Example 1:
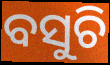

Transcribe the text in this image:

ବସୁଚି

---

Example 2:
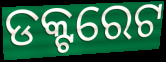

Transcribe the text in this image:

ଡକ୍ଟରେଟ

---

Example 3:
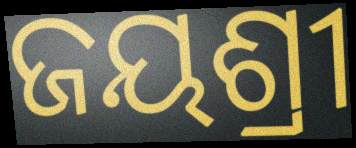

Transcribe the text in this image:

ଜୟଶ୍ରୀ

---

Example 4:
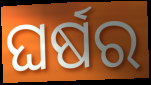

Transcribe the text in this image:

ଘର୍ଷର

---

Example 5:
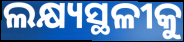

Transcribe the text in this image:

ଲକ୍ଷ୍ୟସ୍ଥଳୀକୁ